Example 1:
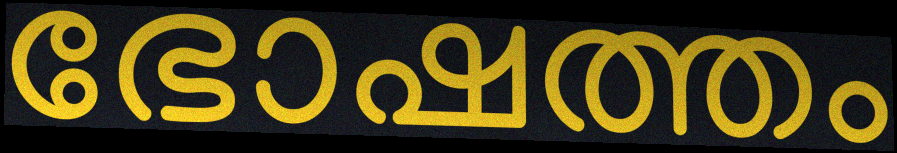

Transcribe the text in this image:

ഭോഷത്തം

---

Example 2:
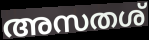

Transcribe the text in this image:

അസതശ്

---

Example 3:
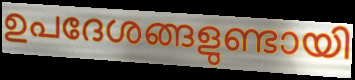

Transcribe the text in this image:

ഉപദേശങ്ങളുണ്ടായി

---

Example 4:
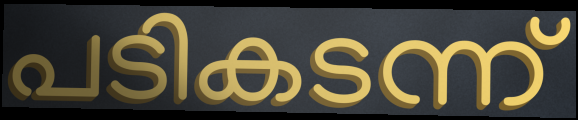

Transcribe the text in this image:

പടികടന്ന്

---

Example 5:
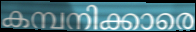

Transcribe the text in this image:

കമ്പനിക്കാരെ